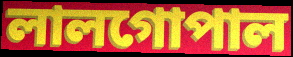
লালগোপাল